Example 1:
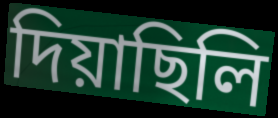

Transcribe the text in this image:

দিয়াছিলি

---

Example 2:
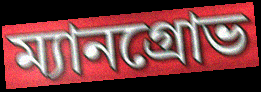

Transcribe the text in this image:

ম্যানগ্রোভ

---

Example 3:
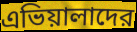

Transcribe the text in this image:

এভিয়ালাদের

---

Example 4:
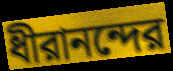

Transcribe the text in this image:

ধীরানন্দের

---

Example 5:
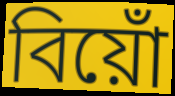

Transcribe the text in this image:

বিয়োঁ